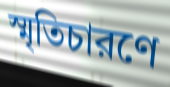
স্মৃতিচারণে